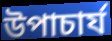
উপাচাৰ্য